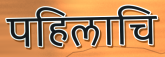
पहिलाचि